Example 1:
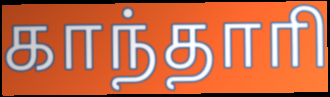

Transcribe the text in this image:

காந்தாரி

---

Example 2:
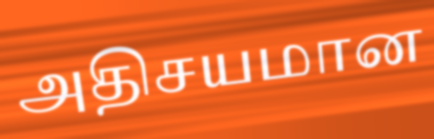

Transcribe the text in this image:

அதிசயமான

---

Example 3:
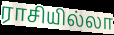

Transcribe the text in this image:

ராசியில்லா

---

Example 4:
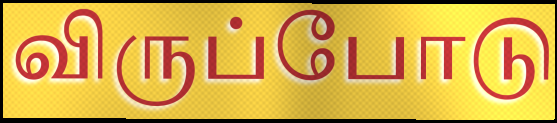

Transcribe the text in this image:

விருப்போடு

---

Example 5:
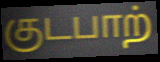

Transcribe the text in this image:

குடபாற்